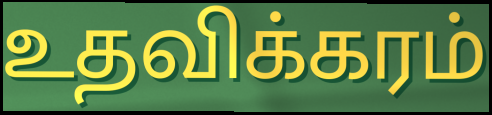
உதவிக்கரம்